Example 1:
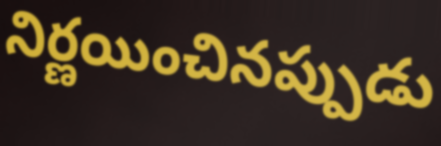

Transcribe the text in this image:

నిర్ణయించినప్పుడు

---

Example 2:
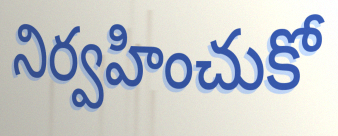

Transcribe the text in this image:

నిర్వహించుకో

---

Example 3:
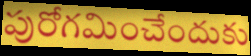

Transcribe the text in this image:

పురోగమించేందుకు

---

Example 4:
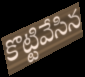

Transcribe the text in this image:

కొట్టివేసిన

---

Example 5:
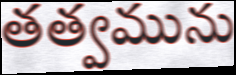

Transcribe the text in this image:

తత్వమును